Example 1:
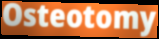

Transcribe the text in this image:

Osteotomy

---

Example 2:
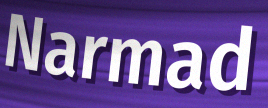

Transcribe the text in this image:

Narmad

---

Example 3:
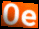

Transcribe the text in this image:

Oe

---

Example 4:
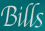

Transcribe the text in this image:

Bills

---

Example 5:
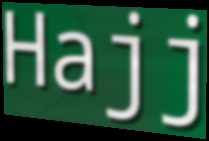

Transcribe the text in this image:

Hajj